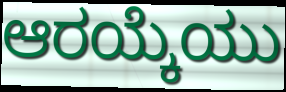
ಆರಯ್ಕೆಯು